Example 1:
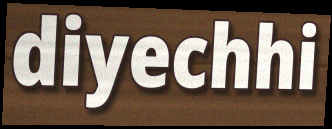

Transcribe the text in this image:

diyechhi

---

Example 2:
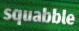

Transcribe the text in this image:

squabble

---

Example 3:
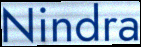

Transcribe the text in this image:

Nindra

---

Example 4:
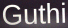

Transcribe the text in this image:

Guthi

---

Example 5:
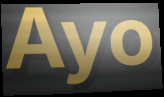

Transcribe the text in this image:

Ayo